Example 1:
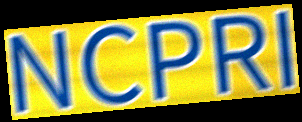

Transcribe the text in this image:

NCPRI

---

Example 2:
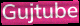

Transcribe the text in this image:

Gujtube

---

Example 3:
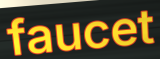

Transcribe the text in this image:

faucet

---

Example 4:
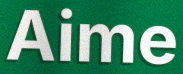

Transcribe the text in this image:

Aime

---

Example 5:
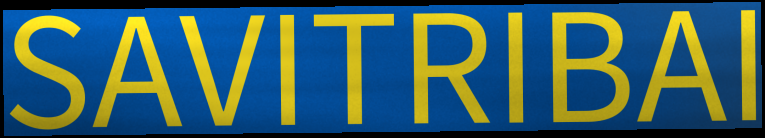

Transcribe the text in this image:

SAVITRIBAI